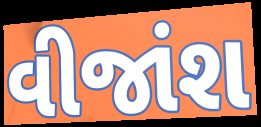
વીજાંશ